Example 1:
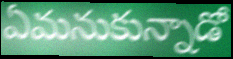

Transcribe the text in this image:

ఏమనుకున్నాడో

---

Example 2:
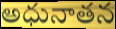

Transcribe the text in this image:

అధునాతన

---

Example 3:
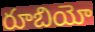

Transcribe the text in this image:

రూబియో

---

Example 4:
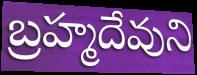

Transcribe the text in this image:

బ్రహ్మదేవుని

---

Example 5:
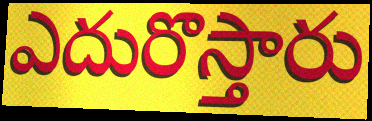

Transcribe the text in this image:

ఎదురొస్తారు